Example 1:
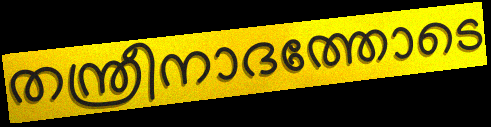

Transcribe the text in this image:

തന്ത്രീനാദത്തോടെ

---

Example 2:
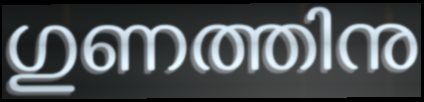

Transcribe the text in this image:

ഗുണത്തിനു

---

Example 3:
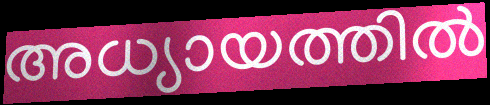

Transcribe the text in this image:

അധ്യായത്തിൽ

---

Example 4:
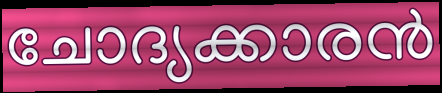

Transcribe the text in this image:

ചോദ്യക്കാരൻ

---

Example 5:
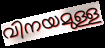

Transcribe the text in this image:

വിനയമുള്ള